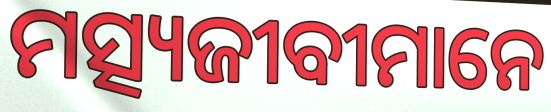
ମତ୍ସ୍ୟଜୀବୀମାନେ